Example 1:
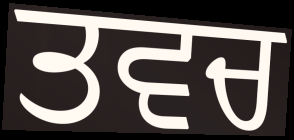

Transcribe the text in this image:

ਤਵਚ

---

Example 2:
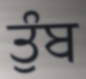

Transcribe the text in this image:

ਤੁੰਬ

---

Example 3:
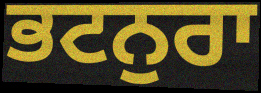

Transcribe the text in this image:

ਭਟਨੁਰਾ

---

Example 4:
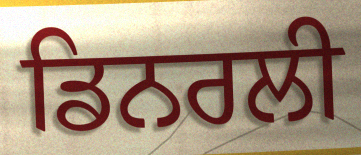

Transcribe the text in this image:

ਡਿਨਰਲੀ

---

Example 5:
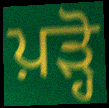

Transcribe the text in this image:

ਪ਼ੜ੍ਹੋ